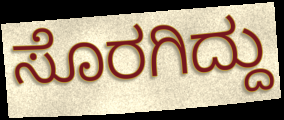
ಸೊರಗಿದ್ದು